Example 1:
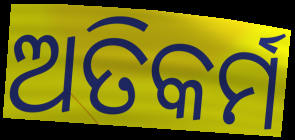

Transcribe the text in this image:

ଅତିକର୍ମ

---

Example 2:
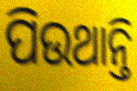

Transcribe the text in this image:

ପିଉଥାନ୍ତି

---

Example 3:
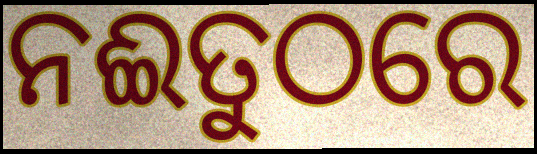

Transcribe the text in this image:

ନଈତୁଠରେ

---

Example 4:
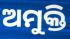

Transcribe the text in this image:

ଅମୁକ୍ତି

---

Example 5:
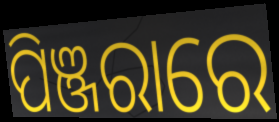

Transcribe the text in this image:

ପିଞ୍ଜରାରେ